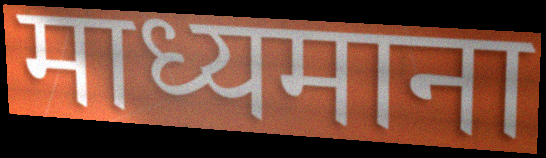
माध्यमाना